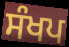
ਸੰਖਪ